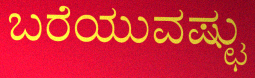
ಬರೆಯುವಷ್ಟು